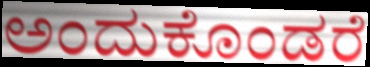
ಅಂದುಕೊಂಡರೆ